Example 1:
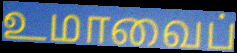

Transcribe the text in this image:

உமாவைப்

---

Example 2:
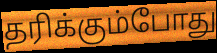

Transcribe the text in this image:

தரிக்கும்போது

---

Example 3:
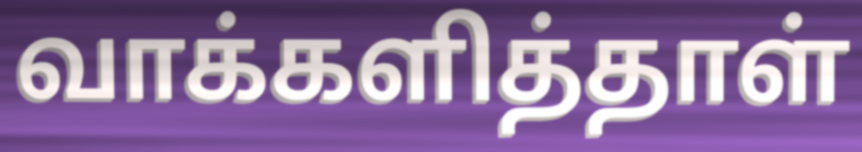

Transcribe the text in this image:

வாக்களித்தாள்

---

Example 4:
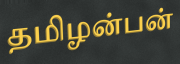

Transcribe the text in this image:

தமிழன்பன்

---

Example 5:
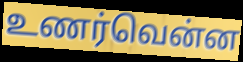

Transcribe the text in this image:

உணர்வென்ன